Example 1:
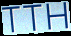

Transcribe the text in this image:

TTH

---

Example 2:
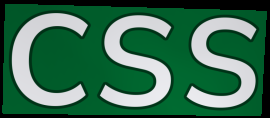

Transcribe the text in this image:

css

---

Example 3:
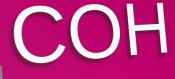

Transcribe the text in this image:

COH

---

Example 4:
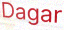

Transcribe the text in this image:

Dagar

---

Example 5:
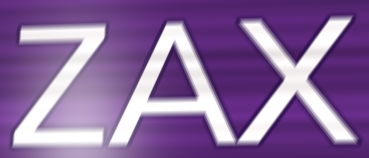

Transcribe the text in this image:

ZAX